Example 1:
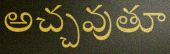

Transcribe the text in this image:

అచ్చవుతూ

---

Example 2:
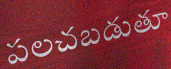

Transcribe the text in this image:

పలచబడుతూ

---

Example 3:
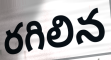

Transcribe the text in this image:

రగిలిన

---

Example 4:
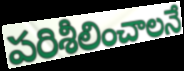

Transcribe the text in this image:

పరిశీలించాలనే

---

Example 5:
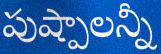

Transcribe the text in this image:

పుష్పాలన్నీ